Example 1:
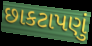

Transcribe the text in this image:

છાકટાપણું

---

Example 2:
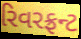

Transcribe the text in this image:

રિવરફ્રન્ટ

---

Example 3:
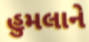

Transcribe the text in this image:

હુમલાને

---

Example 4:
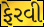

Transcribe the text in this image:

ફેરવી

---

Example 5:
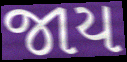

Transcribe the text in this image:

જાય